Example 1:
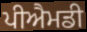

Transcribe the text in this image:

ਪੀਐਮਡੀ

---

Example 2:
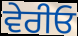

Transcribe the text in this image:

ਵੇਰੀਓ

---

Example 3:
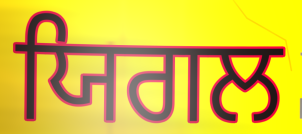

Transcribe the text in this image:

ਯਿਗਲ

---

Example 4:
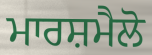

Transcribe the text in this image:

ਮਾਰਸ਼ਮੈਲੋ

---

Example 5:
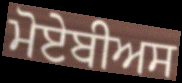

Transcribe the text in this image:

ਮੋਏਬੀਅਸ